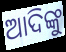
ଆଦିଙ୍କୁ